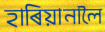
হাৰিয়ানালৈ